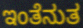
ಇಂತೆನುತ